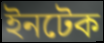
ইনটেক